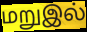
மறுஇல்